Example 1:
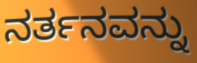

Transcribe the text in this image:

ನರ್ತನವನ್ನು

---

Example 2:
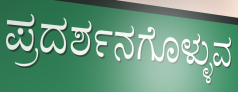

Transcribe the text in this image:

ಪ್ರದರ್ಶನಗೊಳ್ಳುವ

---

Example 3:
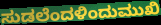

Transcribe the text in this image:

ಸುಡಲೆಂದಳಿಂದುಮುಖಿ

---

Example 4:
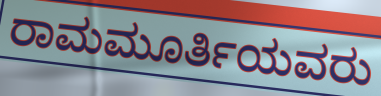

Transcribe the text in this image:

ರಾಮಮೂರ್ತಿಯವರು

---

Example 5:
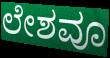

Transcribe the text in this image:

ಲೇಶವೂ